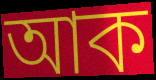
আক